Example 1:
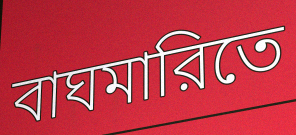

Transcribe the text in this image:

বাঘমারিতে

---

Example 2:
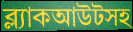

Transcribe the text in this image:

ব্ল্যাকআউটসহ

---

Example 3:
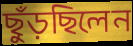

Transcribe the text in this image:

ছুঁড়ছিলেন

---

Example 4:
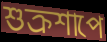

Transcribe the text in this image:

শুক্রশাপে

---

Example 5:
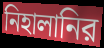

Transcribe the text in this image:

নিহালানির